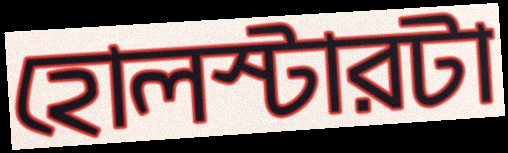
হোলস্টারটা